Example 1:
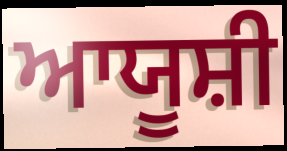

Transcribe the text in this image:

ਆਯੂਸ਼ੀ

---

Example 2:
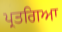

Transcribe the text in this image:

ਪ੍ਰਤਗਿਆ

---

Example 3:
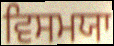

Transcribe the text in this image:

ਵਿਸਮਯਾ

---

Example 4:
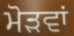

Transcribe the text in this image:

ਮੋੜਵਾਂ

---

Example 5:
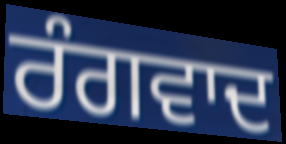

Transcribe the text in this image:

ਰੰਗਵਾਦ